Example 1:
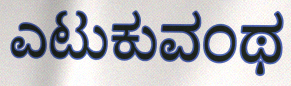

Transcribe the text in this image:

ಎಟುಕುವಂಥ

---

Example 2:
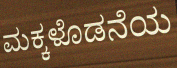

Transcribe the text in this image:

ಮಕ್ಕಳೊಡನೆಯ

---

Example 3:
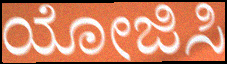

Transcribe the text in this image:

ಯೋಜಿಸಿ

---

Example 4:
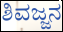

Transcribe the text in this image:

ಶಿವಜ್ಜನ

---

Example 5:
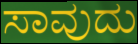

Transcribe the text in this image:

ಸಾವುದು